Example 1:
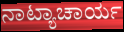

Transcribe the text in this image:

ನಾಟ್ಯಾಚಾರ್ಯ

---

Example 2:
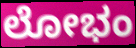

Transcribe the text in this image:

ಲೋಭಂ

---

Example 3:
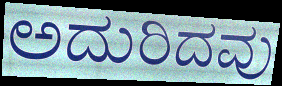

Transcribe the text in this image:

ಅದುರಿದವು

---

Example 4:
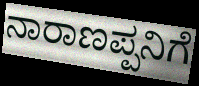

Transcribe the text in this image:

ನಾರಾಣಪ್ಪನಿಗೆ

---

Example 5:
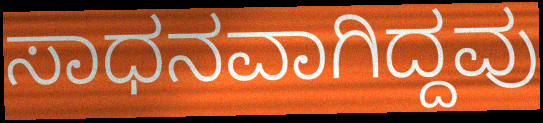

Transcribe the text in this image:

ಸಾಧನವಾಗಿದ್ದವು